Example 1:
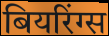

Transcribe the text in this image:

बियरिंग्स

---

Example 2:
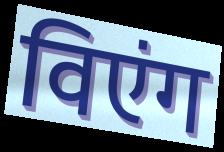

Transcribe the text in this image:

विएंग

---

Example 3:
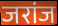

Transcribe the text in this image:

जरांज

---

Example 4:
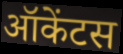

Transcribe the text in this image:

ऑकेंटस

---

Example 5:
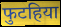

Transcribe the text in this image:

फुटहिया